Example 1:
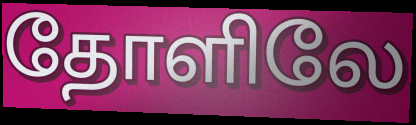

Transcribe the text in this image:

தோளிலே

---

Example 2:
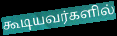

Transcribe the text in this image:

கூடியவர்களில்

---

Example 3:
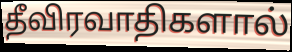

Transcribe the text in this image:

தீவிரவாதிகளால்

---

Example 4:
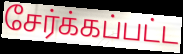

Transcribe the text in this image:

சேர்க்கப்பட்ட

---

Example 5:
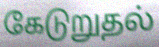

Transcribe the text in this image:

கேடுறுதல்